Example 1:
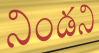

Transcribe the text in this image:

నిండని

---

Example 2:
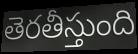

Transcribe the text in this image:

తెరతీస్తుంది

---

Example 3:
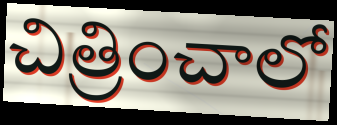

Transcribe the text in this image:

చిత్రించాలో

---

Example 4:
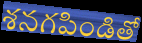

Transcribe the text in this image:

శనగపిండితో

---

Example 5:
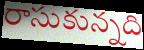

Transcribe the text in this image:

రాసుకున్నది